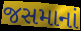
જસમાનાં